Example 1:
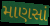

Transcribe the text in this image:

માણસાં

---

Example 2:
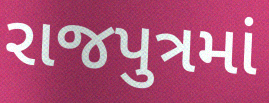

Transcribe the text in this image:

રાજપુત્રમાં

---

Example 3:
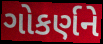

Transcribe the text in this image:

ગોકર્ણને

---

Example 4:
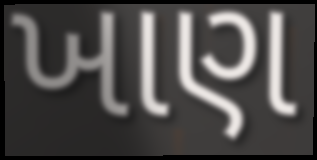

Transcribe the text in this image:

ખાણ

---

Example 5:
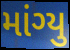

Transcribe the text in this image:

માંગ્યુ